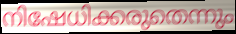
നിഷേധിക്കരുതെന്നും